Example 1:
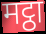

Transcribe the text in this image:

मट्ठा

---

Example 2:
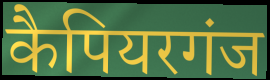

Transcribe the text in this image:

कैपियरगंज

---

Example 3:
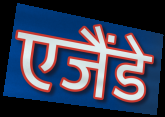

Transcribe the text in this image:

एजैंडे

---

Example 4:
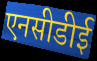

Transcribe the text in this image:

एनसीडीई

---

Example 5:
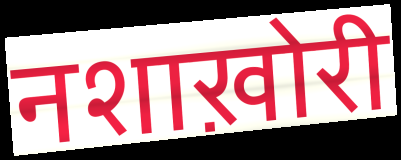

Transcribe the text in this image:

नशाख़ोरी